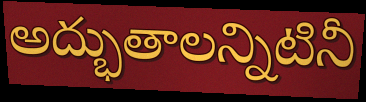
అద్భుతాలన్నిటినీ